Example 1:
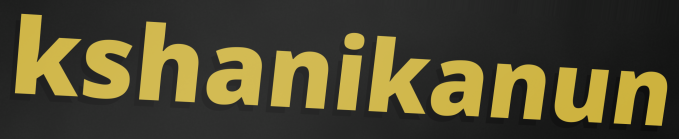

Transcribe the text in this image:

kshanikanun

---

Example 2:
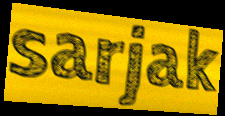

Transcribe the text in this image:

sarjak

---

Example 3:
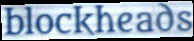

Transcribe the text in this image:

blockheads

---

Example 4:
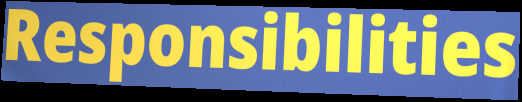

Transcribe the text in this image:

Responsibilities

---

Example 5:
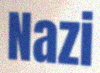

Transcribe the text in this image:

Nazi